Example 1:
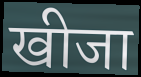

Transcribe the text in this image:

खीजा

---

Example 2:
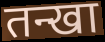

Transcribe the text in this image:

तन्खा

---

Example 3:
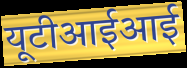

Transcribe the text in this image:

यूटीआईआई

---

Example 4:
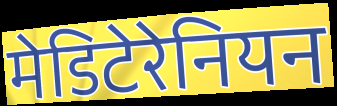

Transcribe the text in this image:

मेडिटेरेनियन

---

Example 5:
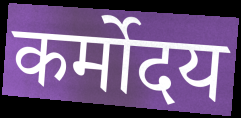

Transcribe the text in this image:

कर्मोदय